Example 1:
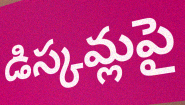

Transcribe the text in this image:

డిస్కమ్లపై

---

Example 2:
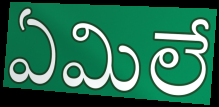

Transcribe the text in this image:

ఏమిలే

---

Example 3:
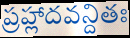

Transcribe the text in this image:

ప్రహ్లాదవన్దితః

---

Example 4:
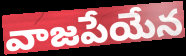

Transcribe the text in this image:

వాజపేయేన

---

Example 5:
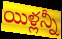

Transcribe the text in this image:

యిళ్లన్నీ